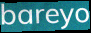
bareyo